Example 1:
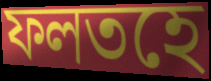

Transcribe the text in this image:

ফলতহে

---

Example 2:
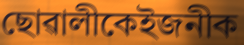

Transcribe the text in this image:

ছোৱালীকেইজনীক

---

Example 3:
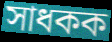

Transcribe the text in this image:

সাধকক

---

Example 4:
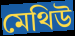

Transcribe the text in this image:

মেথিউ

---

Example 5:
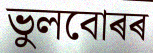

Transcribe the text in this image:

ভুলবোৰৰ